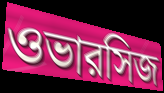
ওভারসিজ